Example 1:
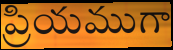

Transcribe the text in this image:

ప్రియముగా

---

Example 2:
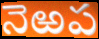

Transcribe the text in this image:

నెఱప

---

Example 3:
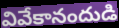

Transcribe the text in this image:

వివేకానందుడి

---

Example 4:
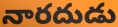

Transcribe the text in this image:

నారదుడు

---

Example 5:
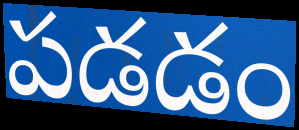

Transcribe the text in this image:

పడడం